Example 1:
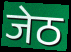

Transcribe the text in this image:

जेठ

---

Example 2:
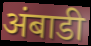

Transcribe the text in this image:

अंबाडी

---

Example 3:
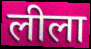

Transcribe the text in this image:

लीला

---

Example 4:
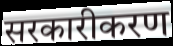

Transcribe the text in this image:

सरकारीकरण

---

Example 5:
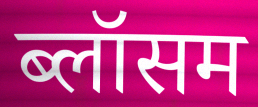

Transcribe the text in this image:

ब्लॉसम